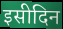
इसीदिन